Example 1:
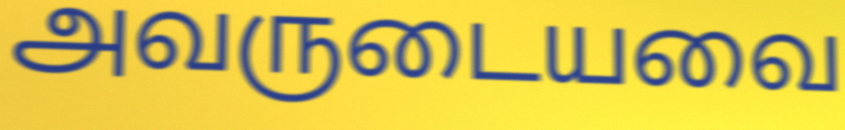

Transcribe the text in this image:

அவருடையவை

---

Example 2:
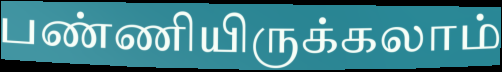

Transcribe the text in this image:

பண்ணியிருக்கலாம்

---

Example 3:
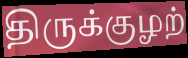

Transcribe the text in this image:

திருக்குழற்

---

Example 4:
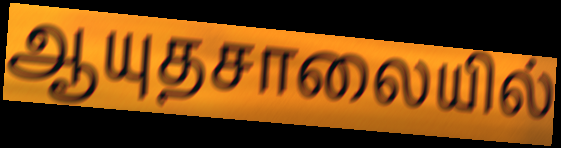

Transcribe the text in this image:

ஆயுதசாலையில்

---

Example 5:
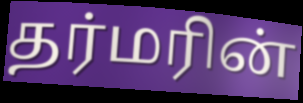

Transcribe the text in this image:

தர்மரின்